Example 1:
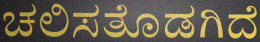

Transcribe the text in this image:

ಚಲಿಸತೊಡಗಿದೆ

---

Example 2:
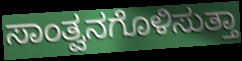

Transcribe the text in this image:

ಸಾಂತ್ವನಗೊಳಿಸುತ್ತಾ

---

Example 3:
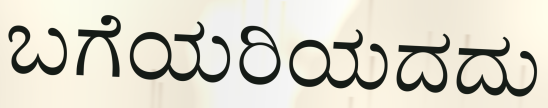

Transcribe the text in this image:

ಬಗೆಯರಿಯದದು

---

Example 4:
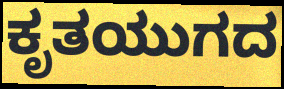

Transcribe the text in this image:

ಕೃತಯುಗದ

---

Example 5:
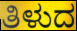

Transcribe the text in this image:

ತಿಳುದ